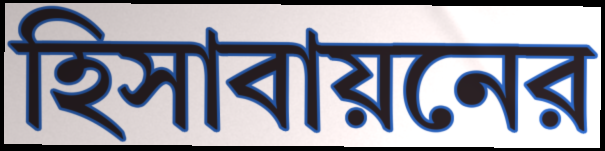
হিসাবায়নের